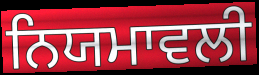
ਨਿਯਮਾਵਲੀ